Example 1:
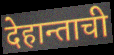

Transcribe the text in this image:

देहान्ताची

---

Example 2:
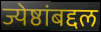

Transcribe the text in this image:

ज्येष्ठांबद्दल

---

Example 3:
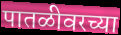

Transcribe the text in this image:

पातळीवरच्या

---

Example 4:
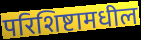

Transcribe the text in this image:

परिशिष्टामधील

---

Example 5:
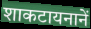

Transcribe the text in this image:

शाकटायनानें